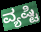
ವ್ಯಷ್ಟಿ